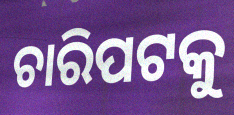
ଚାରିପଟକୁ